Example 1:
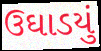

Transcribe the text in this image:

ઉઘાડયું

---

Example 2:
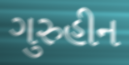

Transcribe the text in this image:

ગુરુહીન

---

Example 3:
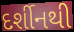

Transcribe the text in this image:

દર્શીનથી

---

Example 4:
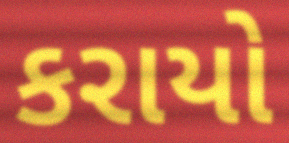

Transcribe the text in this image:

કરાયો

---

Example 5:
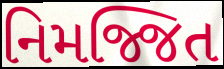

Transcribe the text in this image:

નિમજ્જિત